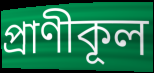
প্রাণীকূল